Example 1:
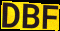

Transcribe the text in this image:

DBF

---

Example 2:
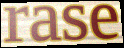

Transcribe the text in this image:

rase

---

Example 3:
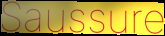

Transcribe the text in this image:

Saussure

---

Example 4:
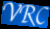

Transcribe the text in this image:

VRC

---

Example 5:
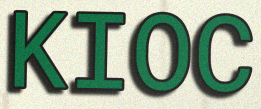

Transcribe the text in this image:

KIOC